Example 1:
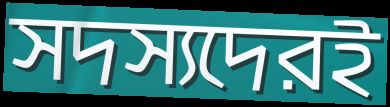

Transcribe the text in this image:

সদস্যদেরই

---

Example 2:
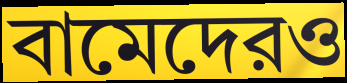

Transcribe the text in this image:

বামেদেরও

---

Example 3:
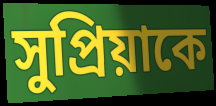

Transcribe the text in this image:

সুপ্রিয়াকে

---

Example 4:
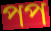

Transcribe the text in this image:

পপ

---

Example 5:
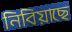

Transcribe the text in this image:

নিবিয়াছে